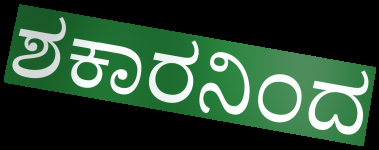
ಶಕಾರನಿಂದ